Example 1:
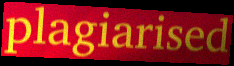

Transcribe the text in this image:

plagiarised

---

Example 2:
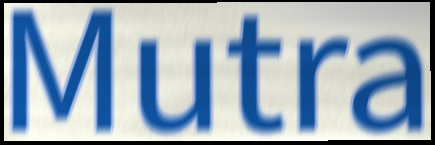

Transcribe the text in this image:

Mutra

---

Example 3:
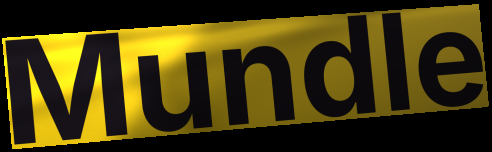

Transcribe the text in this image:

Mundle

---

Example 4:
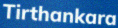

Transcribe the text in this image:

Tirthankara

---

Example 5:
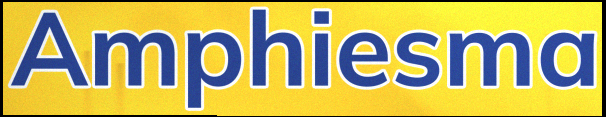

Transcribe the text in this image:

Amphiesma